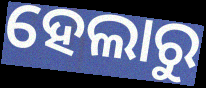
ହେଲାରୁ